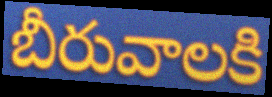
బీరువాలకి